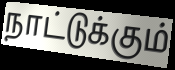
நாட்டுக்கும்